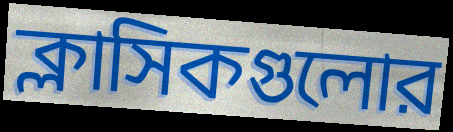
ক্লাসিকগুলোর